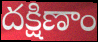
దక్షిణాం